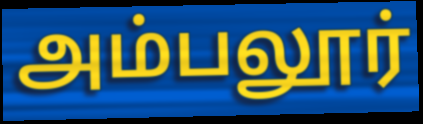
அம்பலூர்